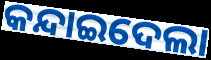
କନ୍ଦାଇଦେଲା